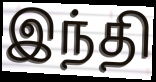
இந்தி